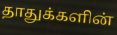
தாதுக்களின்